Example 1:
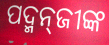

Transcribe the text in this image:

ପଦ୍ମନ୍‌ଜୀଙ୍କ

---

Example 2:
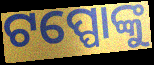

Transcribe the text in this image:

ଟପ୍ପୋଙ୍କୁ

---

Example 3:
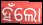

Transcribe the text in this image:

ହଁଲୋ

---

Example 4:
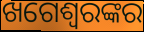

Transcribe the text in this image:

ଖଗେଶ୍ୱରଙ୍କର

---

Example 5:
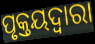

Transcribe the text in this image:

ପୃକ୍ତୟଦ୍ଵାରା